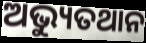
ଅଭ୍ୟୁତଥାନ